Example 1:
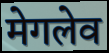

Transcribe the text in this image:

मेगलेव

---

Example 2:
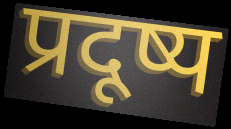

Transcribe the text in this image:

प्रदूष्य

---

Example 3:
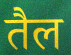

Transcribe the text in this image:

तैल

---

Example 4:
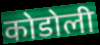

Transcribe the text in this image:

कोडोली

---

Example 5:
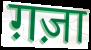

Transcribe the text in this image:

ग़ज़ा